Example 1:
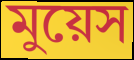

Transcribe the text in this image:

মুয়েস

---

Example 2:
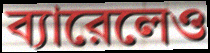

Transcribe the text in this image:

ব্যারেলেও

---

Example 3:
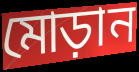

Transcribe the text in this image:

মোড়ান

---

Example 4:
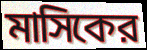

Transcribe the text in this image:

মাসিকের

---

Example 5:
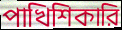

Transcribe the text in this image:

পাখিশিকারি